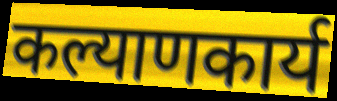
कल्याणकार्य